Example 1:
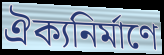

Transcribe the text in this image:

ঐক্যনির্মাণে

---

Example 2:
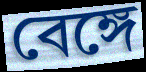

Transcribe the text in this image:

বেঙ্গে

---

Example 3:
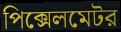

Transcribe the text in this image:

পিক্সেলমেটর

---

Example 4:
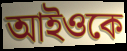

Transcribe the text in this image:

আইওকে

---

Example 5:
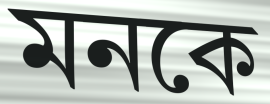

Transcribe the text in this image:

মনকে